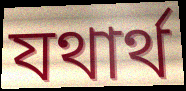
যথার্থ